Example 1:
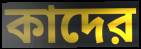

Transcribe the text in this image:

কাদের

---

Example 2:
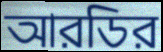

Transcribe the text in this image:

আরডির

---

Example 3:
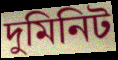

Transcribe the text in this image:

দুমিনিট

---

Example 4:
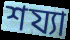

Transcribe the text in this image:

শয্যা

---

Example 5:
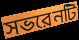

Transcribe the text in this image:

সভরেনটি